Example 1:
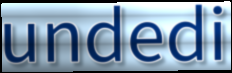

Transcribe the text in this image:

undedi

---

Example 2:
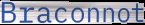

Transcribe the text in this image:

Braconnot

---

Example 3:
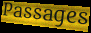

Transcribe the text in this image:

Passages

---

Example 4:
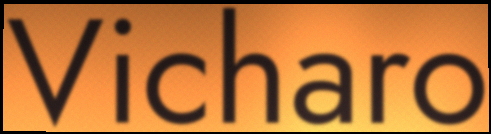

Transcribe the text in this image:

Vicharo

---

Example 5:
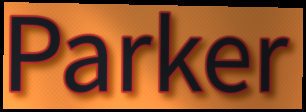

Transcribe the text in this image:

Parker